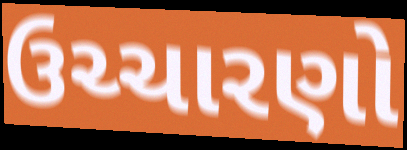
ઉચ્ચારણો